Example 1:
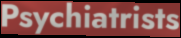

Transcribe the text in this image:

Psychiatrists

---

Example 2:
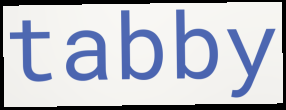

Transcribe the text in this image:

tabby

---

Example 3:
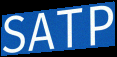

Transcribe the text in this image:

SATP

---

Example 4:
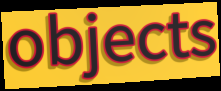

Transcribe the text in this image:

objects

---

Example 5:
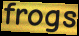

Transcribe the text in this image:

frogs